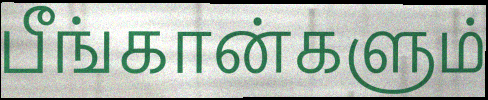
பீங்கான்களும்